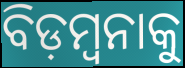
ବିଡ଼ମ୍ୱନାକୁ